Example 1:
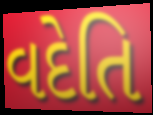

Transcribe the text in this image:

વદેતિ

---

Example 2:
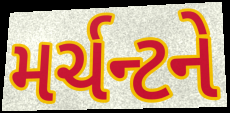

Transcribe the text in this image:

મર્ચન્ટને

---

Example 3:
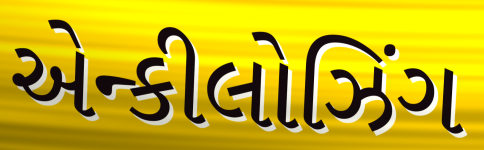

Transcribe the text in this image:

એન્કીલોઝિંગ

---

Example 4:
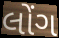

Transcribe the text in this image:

લોંગ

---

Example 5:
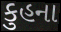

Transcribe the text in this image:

કુહના